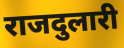
राजदुलारी